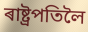
ৰাষ্ট্ৰপতিলৈ